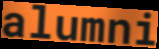
alumni